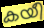
കയീ